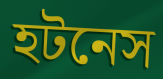
হটনেস